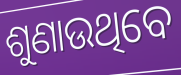
ଶୁଣାଉଥିବେ